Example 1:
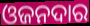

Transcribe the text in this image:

ଓଜନଦାର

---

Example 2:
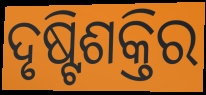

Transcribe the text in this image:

ଦୃଷ୍ଟିଶକ୍ତିର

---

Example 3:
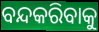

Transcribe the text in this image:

ବନ୍ଦକରିବାକୁ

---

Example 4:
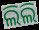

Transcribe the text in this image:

ଲିଲି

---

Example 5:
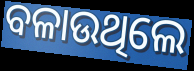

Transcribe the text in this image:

ବଳାଉଥିଲେ